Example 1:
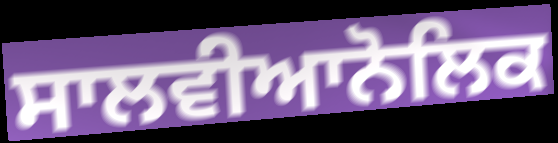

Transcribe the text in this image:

ਸਾਲਵੀਆਨੋਲਿਕ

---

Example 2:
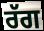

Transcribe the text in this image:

ਰੱਗ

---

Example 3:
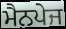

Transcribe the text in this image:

ਮੈਨਪੇਜ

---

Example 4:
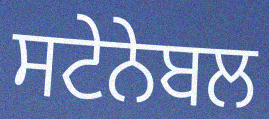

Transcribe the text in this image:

ਸਟੇਨੇਬਲ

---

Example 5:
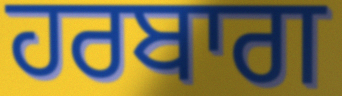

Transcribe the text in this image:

ਹਰਬਾਗ